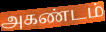
அகண்டம்